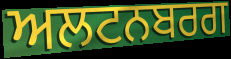
ਅਲਟਨਬਰਗ